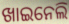
ଖାଇନେଲି